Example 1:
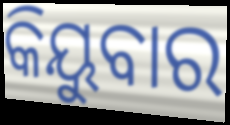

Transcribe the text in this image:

କିୟୁବାର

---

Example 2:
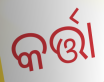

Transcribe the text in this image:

କର୍ତ୍ତା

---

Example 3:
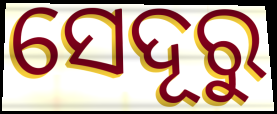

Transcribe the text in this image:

ସେଦୂରୁ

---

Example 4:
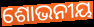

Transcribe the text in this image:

ଶୋଭନୀୟ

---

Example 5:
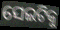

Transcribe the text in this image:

ସେଇଟିକୁ